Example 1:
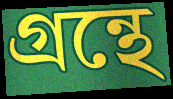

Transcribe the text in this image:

গ্ৰন্থে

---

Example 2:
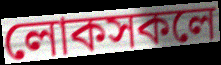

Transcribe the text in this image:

লোকসকলে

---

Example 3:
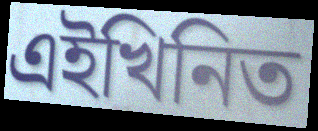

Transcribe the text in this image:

এইখিনিত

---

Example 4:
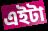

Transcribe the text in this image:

এইটা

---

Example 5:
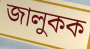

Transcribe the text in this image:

জালুকক